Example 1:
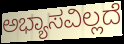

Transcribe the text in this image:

ಅಭ್ಯಾಸವಿಲ್ಲದೆ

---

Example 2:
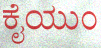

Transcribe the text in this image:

ಕೈಯುಂ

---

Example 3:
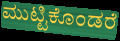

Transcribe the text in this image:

ಮುಟ್ಟಿಕೊಂಡರೆ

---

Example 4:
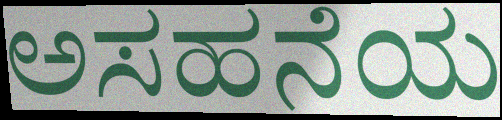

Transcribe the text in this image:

ಅಸಹನೆಯ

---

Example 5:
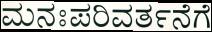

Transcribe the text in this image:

ಮನಃಪರಿವರ್ತನೆಗೆ